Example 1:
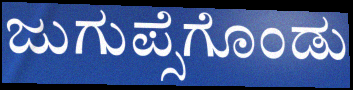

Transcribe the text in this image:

ಜುಗುಪ್ಸೆಗೊಂಡು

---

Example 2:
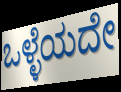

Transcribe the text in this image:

ಒಳ್ಳೆಯದೇ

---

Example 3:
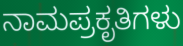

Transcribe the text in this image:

ನಾಮಪ್ರಕೃತಿಗಳು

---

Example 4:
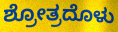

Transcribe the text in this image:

ಶ್ರೋತ್ರದೊಳು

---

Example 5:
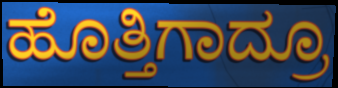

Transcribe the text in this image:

ಹೊತ್ತಿಗಾದ್ರೂ